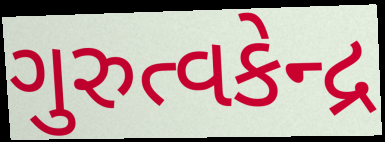
ગુરુત્વકેન્દ્ર